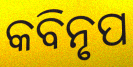
କବିନୃପ